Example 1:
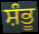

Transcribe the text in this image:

ਸ਼ੰਭੂ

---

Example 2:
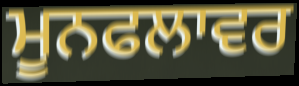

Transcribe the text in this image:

ਮੂਨਫਲਾਵਰ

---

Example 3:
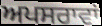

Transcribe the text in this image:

ਅਪਸਰਾਵਾਂ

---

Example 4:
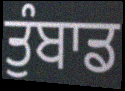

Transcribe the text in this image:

ਤੁੰਬਾਡ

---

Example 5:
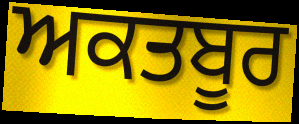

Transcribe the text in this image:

ਅਕਤਬੂਰ